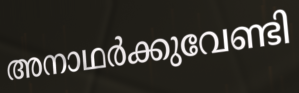
അനാഥർക്കുവേണ്ടി